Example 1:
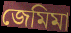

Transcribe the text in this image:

জেমিমা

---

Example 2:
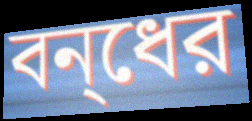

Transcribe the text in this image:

বন্‌ধের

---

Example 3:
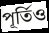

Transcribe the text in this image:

পূর্তিও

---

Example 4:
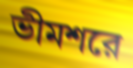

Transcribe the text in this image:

ভীমশরে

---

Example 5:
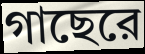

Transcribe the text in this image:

গাছেরে